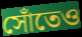
সোঁতেও